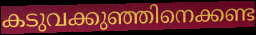
കടുവക്കുഞ്ഞിനെക്കണ്ട